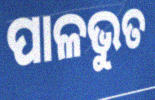
ପାଳଭୁତ